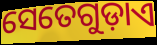
ସେତେଗୁଡ଼ାଏ